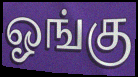
ஓங்கு